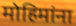
मोहिमांना